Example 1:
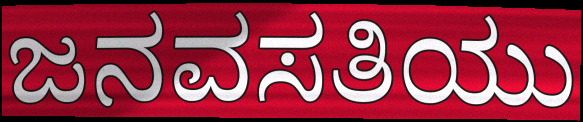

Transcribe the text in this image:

ಜನವಸತಿಯು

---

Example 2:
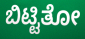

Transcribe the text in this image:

ಬಿಟ್ಟಿತೋ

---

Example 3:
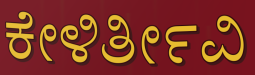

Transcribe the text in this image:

ಕೇಳಿರ್ತೀವಿ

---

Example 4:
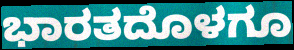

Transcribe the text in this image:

ಭಾರತದೊಳಗೂ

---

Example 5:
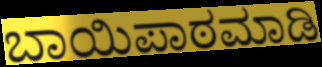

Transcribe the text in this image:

ಬಾಯಿಪಾಠಮಾಡಿ